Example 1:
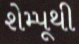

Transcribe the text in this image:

શેમ્પૂથી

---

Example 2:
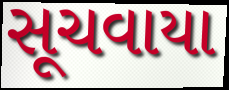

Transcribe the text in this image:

સૂચવાયા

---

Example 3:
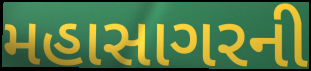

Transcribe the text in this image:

મહાસાગરની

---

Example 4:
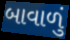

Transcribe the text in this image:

બાવાળું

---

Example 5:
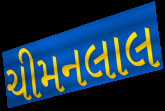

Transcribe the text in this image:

ચીમનલાલ